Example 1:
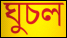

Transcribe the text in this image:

ঘুচল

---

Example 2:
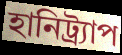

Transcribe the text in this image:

হানিট্র্যাপ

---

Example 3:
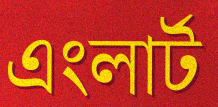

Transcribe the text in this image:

এংলার্ট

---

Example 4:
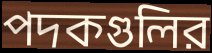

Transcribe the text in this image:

পদকগুলির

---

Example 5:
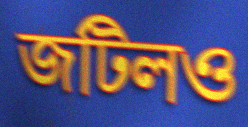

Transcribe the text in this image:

জটিলও